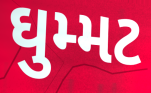
ઘુમ્મટ